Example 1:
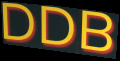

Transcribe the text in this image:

DDB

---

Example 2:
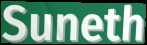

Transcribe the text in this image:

Suneth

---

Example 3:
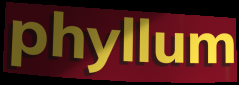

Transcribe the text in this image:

phyllum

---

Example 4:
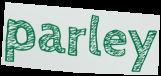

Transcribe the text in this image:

parley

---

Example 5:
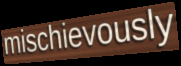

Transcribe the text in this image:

mischievously